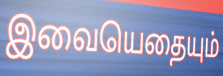
இவையெதையும்